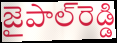
జైపాల్‌రెడ్డి